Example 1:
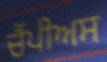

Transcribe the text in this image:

ਚੈਂਪੀਅਸ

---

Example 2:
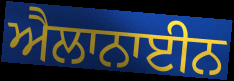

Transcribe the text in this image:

ਐਲਾਨਾਈਨ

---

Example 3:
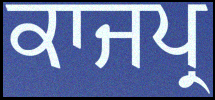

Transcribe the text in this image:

ਕਾਜਪ੍ਰ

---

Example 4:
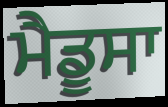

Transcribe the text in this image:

ਮੈਡੂਸਾ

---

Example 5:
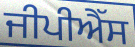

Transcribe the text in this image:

ਜੀਪੀਐੱਸ